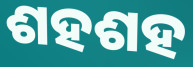
ଶହଶହ